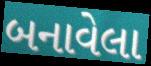
બનાવેલા